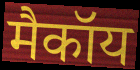
मैकॉय